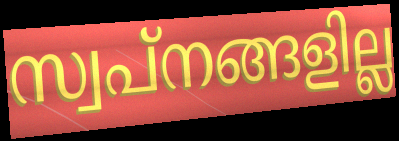
സ്വപ്നങ്ങളില്ല